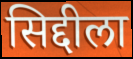
सिद्दीला